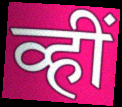
व्हीं